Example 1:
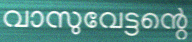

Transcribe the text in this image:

വാസുവേട്ടന്റെ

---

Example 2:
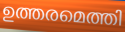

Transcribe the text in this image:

ഉത്തരമെത്തി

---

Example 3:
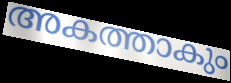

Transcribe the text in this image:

അകത്താകും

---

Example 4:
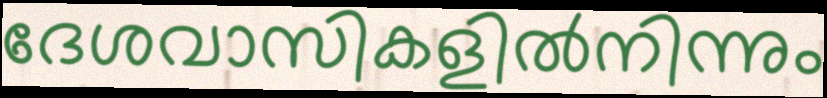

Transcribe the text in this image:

ദേശവാസികളിൽനിന്നും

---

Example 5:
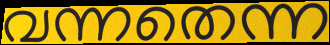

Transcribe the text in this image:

വന്നതെന്ന